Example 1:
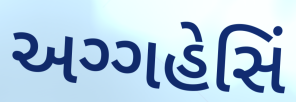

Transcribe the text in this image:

અગ્ગહેસિં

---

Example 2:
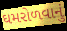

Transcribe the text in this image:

ઘમરોળવાનું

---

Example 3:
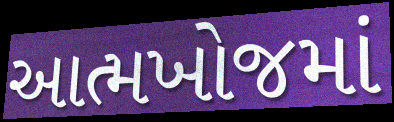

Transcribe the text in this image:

આત્મખોજમાં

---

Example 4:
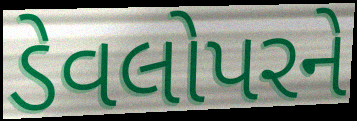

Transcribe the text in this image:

ડેવલોપરને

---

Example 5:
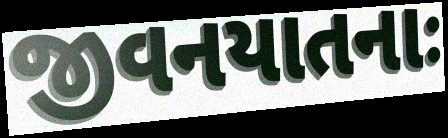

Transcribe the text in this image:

જીવનયાતનાઃ